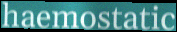
haemostatic